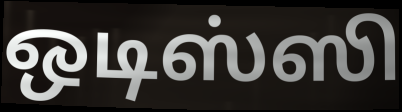
ஒடிஸ்ஸி